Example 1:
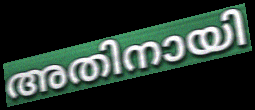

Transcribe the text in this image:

അതിനായി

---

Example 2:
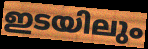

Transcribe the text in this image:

ഇടയിലും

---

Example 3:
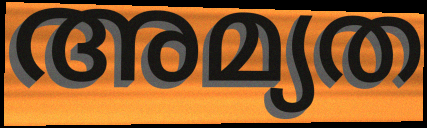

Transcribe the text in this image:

അമ്യത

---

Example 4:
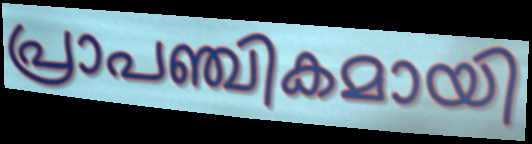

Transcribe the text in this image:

പ്രാപഞ്ചികമായി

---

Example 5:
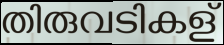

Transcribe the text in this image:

തിരുവടികള്